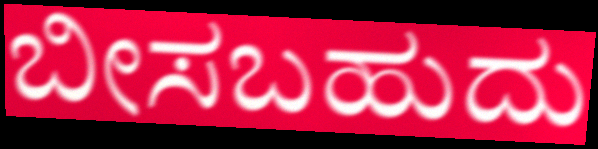
ಬೀಸಬಹುದು